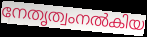
നേതൃത്വംനൽകിയ